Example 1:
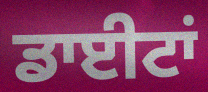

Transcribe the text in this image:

ਡਾਈਟਾਂ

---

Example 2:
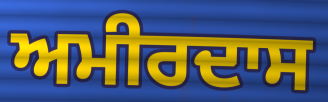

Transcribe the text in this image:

ਅਮੀਰਦਾਸ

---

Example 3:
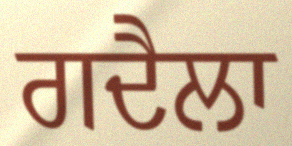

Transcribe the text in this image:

ਗਦੈਲਾ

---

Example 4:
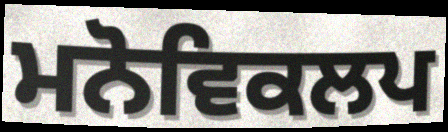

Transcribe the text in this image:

ਮਨੋਵਿਕਲਪ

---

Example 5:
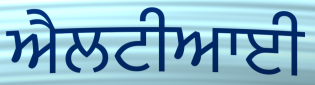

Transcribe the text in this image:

ਐਲਟੀਆਈ